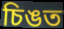
চিঙত